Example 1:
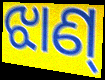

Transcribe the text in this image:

ଝାଣ୍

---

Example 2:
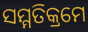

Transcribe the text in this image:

ସମ୍ମତିକ୍ରମେ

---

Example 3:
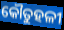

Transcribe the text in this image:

କୌତୁହଳୀ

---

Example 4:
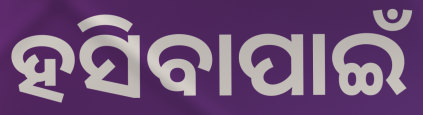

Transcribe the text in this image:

ହସିବାପାଇଁ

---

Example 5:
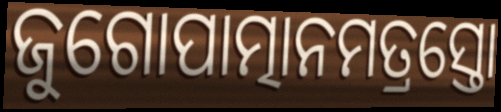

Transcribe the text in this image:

ଜୁଗୋପାତ୍ମାନମତ୍ରସ୍ତୋ